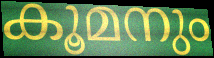
കൂമനും